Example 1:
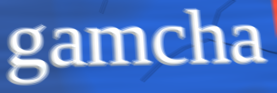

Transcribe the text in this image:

gamcha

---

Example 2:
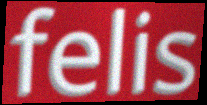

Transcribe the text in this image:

felis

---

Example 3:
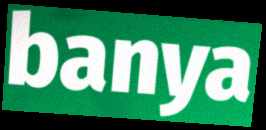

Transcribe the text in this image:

banya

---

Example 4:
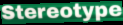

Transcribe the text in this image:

Stereotype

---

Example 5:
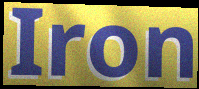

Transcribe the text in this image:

Iron